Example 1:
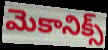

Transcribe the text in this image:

మెకానిక్స్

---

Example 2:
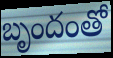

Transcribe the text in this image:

బృందంతో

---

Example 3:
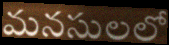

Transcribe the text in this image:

మనసులలో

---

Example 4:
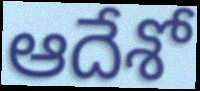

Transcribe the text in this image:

ఆదేశో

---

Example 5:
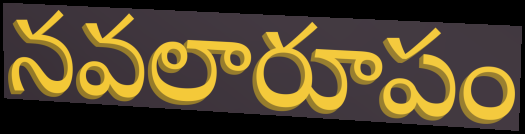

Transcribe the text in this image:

నవలారూపం